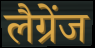
लैग्रेंज